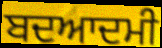
ਬਦਆਦਮੀ